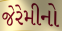
જેરેમીનો